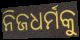
ନିଜଧର୍ମକୁ